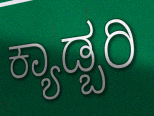
ಕ್ಯಾಡ್ಬರಿ